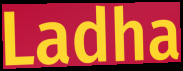
Ladha